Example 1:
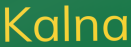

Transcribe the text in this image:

Kalna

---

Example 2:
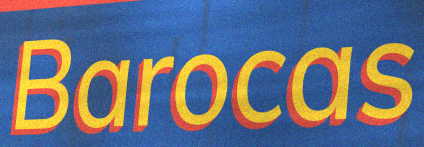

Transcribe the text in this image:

Barocas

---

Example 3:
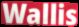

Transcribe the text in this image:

Wallis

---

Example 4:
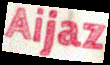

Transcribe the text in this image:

Aijaz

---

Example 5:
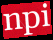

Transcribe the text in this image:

npi